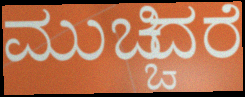
ಮುಚ್ಚಿದರೆ